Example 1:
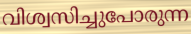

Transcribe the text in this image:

വിശ്വസിച്ചുപോരുന്ന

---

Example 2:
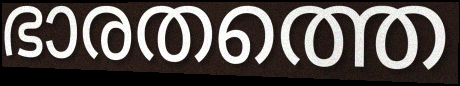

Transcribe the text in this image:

ഭാരതത്തെ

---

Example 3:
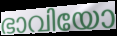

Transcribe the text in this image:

ഭാവിയോ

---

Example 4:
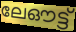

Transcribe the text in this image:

ലേഔട്ട്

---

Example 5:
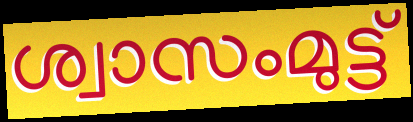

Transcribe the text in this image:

ശ്വാസംമുട്ട്